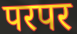
परपर